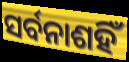
ସର୍ବନାଶହିଁ